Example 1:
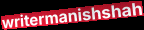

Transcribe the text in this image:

writermanishshah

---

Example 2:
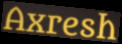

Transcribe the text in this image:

Axresh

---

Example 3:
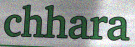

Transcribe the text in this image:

chhara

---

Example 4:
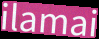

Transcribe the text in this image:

ilamai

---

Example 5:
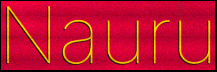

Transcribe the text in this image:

Nauru